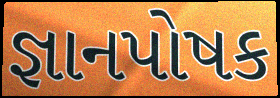
જ્ઞાનપોષક